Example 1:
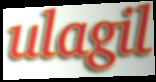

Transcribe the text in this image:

ulagil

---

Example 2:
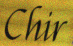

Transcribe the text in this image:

Chir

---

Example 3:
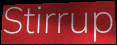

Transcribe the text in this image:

Stirrup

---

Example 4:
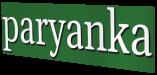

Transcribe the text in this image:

paryanka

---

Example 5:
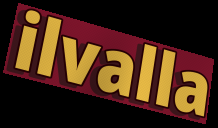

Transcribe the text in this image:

ilvalla